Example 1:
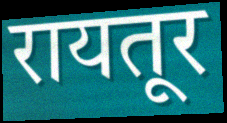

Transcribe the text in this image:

रायतूर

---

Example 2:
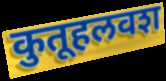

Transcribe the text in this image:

कुतूहलवश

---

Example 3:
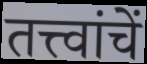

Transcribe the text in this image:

तत्त्वांचें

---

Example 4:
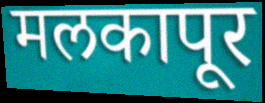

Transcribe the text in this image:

मलकापूर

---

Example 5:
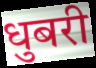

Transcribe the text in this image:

धुबरी